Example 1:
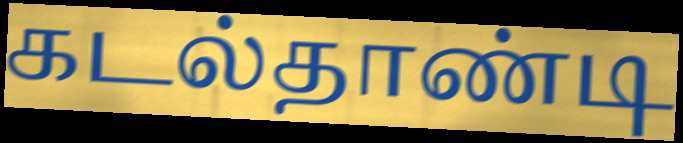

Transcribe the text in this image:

கடல்தாண்டி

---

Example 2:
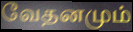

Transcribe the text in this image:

வேதனமும்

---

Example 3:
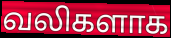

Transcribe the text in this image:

வலிகளாக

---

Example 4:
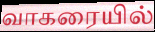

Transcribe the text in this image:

வாகரையில்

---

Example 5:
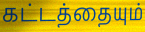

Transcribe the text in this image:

கட்டத்தையும்